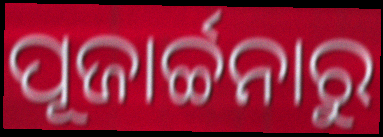
ପୂଜାର୍ଚ୍ଚନାରୁ